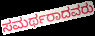
ಸಮರ್ಥರಾದವರು